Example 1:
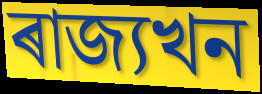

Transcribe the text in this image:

ৰাজ্যখন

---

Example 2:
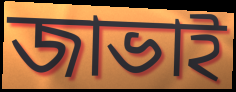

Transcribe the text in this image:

জাভাই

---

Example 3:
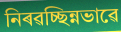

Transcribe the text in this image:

নিৰৱচ্ছিন্নভাৱে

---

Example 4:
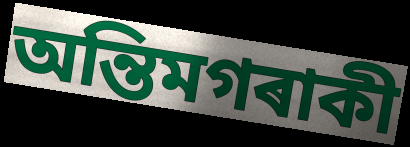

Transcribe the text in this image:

অন্তিমগৰাকী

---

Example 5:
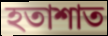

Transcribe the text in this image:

হতাশাত